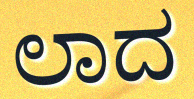
ಲಾದ